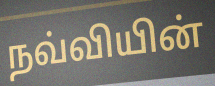
நவ்வியின்